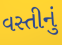
વસ્તીનું